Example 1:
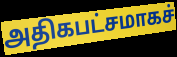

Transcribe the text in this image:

அதிகபட்சமாகச்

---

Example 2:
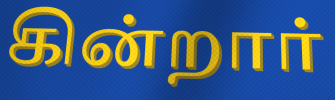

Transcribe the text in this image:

கின்றார்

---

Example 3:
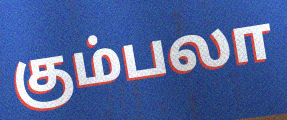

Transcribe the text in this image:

கும்பலா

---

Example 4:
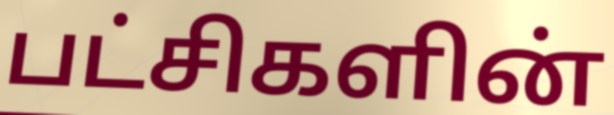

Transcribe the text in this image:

பட்சிகளின்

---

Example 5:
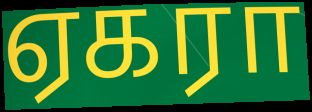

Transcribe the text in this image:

ஏகரா